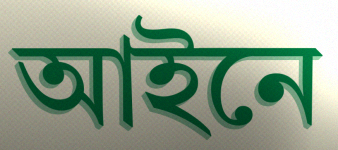
আইনে